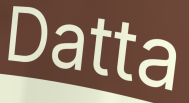
Datta